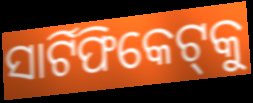
ସାର୍ଟିଫିକେଟ୍‌କୁ